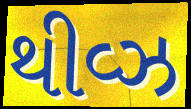
થીવ્ઝ